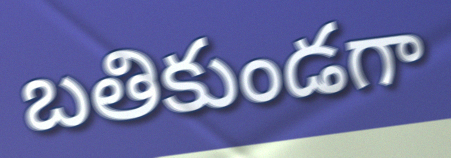
బతికుండగా